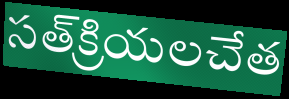
సత్‌క్రియలచేత